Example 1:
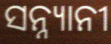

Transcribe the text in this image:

ସନ୍ନ୍ୟାନୀ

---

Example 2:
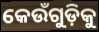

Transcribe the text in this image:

କେଉଁଗୁଡ଼ିକୁ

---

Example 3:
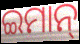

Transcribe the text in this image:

ଇମାନ୍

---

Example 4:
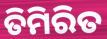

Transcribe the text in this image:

ତିମିରିତ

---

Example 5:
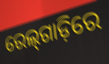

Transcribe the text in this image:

ରେଲ୍‌ଗାଡ଼ିରେ